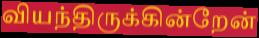
வியந்திருக்கின்றேன்